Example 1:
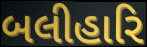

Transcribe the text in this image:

બલીહારિ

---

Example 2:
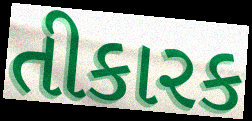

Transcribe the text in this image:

તીકારક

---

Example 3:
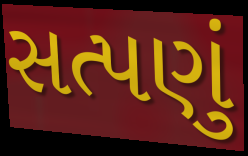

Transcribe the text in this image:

સત્પણું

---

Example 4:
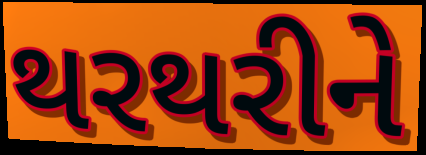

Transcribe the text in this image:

થરથરીને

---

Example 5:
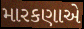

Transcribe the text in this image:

મારકણાએ